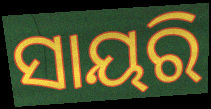
ସାୟରି